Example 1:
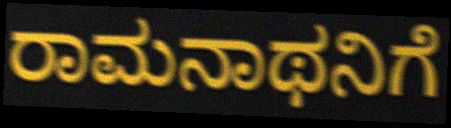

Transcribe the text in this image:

ರಾಮನಾಥನಿಗೆ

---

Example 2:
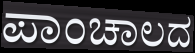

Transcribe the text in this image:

ಪಾಂಚಾಲದ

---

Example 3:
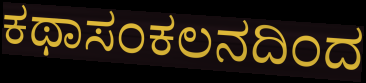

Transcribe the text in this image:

ಕಥಾಸಂಕಲನದಿಂದ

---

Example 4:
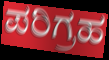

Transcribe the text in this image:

ಪರಿಗ್ರಹ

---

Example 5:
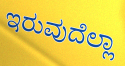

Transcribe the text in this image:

ಇರುವುದೆಲ್ಲಾ